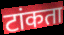
टांकता